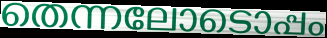
തെന്നലോടൊപ്പം